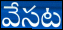
వేసట